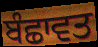
ਬੰਛਾਵਤ